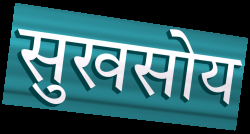
सुखसोय